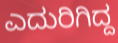
ಎದುರಿಗಿದ್ದ